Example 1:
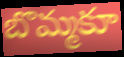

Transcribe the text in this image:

బొమ్మకూ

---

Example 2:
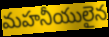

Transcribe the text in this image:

మహనీయులైన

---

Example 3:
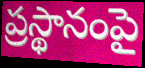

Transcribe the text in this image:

ప్రస్థానంపై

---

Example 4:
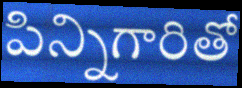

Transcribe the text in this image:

పిన్నిగారితో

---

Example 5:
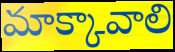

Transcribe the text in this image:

మాక్కావాలి